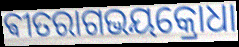
ଵୀତରାଗଭୟକ୍ରୋଧା